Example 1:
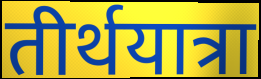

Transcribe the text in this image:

तीर्थयात्रा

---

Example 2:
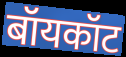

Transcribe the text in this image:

बॉयकॉट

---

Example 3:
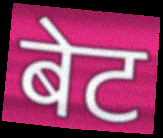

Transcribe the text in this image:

बेट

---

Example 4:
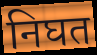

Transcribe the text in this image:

निघत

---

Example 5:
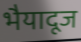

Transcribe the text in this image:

भैयादूज